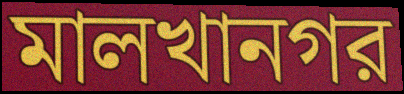
মালখানগর